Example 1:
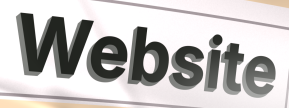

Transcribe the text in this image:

Website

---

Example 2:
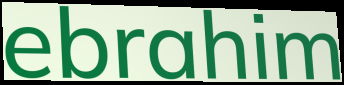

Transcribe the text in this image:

ebrahim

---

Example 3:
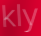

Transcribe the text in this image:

kly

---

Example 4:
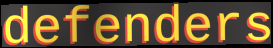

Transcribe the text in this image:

defenders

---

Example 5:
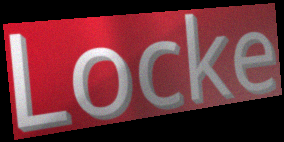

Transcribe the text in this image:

Locke